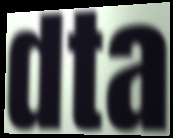
dta